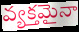
వ్యక్తమైనా